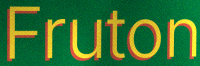
Fruton